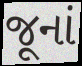
જૂનાં